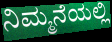
ನಿಮ್ಮನೆಯಲ್ಲಿ